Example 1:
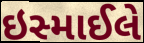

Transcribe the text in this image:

ઇસ્માઈલે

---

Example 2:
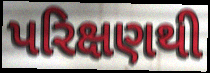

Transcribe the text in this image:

પરિક્ષણથી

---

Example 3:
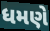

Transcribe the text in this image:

ધમણે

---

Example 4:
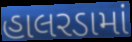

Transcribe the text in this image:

હાલરડામાં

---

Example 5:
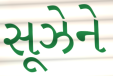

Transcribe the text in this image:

સૂઝેને